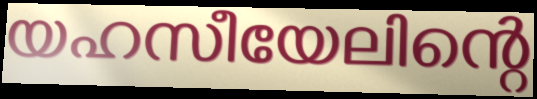
യഹസീയേലിന്റെ